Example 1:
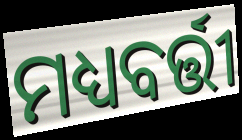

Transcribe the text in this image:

ମଧ୍ୟବର୍ତ୍ତୀ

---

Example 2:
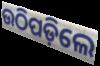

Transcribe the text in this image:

ଉଠିପଡ଼ିଲେ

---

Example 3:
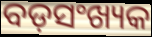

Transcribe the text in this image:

ବଡ଼ସଂଖ୍ୟକ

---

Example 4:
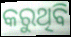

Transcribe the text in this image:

କରୁଥିବି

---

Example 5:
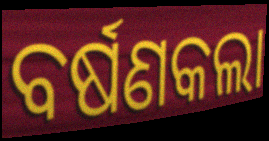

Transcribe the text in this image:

ବର୍ଷଣକଲା